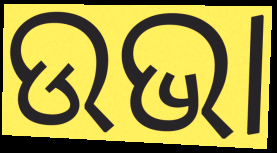
ଉଭା